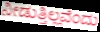
ನೀಡುತ್ತಿಲ್ಲವೆಂದು